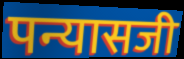
पन्यासजी